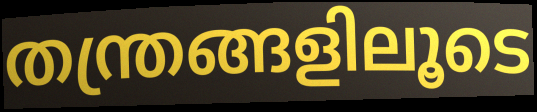
തന്ത്രങ്ങളിലൂടെ